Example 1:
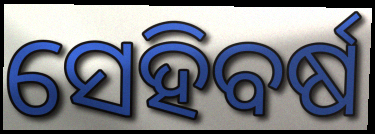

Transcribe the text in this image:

ସେହିବର୍ଷ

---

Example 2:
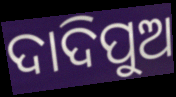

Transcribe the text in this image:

ଦାଦିପୁଅ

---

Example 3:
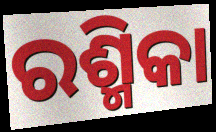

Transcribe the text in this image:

ରଶ୍ମିକା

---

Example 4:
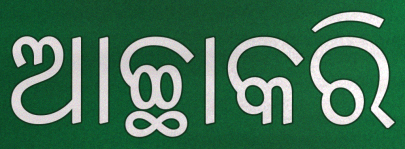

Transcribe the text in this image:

ଆଚ୍ଛାକରି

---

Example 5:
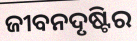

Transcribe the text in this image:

ଜୀବନଦୃଷ୍ଟିର